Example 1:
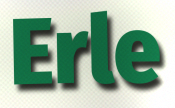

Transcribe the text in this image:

Erle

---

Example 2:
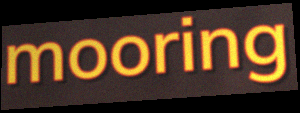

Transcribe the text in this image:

mooring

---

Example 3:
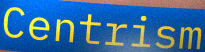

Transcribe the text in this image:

Centrism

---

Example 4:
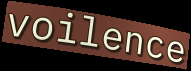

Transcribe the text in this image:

voilence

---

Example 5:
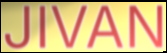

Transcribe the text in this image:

JIVAN